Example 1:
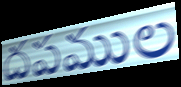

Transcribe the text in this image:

దపముల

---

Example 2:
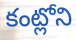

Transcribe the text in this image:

కంట్లోని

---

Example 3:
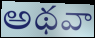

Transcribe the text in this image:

అథవా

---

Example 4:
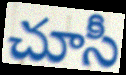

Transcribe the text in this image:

చూసీ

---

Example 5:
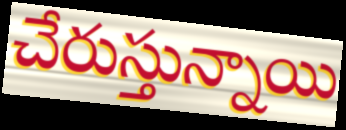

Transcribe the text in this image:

చేరుస్తున్నాయి